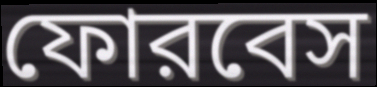
ফোরবেস